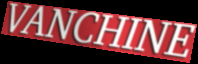
VANCHINE